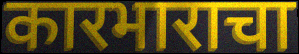
कारभाराचा